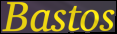
Bastos